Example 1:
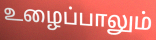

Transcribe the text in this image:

உழைப்பாலும்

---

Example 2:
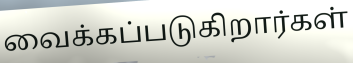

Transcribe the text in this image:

வைக்கப்படுகிறார்கள்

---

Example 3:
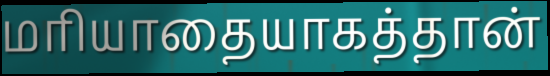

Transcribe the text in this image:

மரியாதையாகத்தான்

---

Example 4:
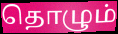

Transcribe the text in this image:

தொழும்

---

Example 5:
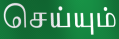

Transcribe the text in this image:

செய்யும்